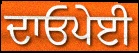
ਦਾਓਪੇਈ